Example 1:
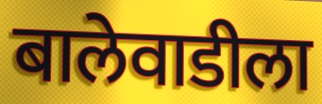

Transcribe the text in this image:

बालेवाडीला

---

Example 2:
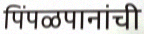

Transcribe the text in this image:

पिंपळपानांची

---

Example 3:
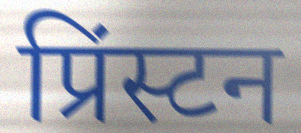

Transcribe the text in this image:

प्रिंस्टन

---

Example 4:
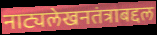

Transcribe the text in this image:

नाट्यलेखनतंत्राबद्दल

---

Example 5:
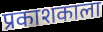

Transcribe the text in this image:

प्रकाशकाला